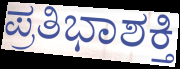
ಪ್ರತಿಭಾಶಕ್ತಿ